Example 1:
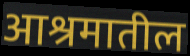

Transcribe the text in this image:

आश्रमातील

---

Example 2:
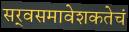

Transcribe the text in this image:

सर्वसमावेशकतेचं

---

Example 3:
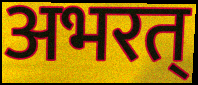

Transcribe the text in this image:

अभरत्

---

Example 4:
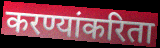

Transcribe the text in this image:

करण्यांकरिता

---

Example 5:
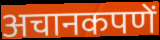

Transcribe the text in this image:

अचानकपणें